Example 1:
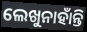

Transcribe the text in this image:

ଲେଖୁନାହାଁନ୍ତି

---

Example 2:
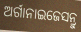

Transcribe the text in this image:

ଅର୍ଗାନାଇଜେସନ୍ରୁ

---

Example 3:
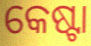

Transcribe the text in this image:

କେଷ୍ଟା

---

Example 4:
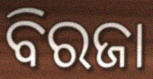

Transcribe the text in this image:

ବିରଜା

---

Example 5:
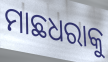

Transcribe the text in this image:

ମାଛଧରାକୁ